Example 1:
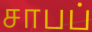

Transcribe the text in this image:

சாபப்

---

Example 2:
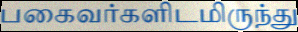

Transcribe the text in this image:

பகைவர்களிடமிருந்து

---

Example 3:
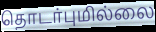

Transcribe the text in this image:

தொடர்புமில்லை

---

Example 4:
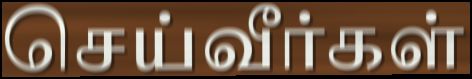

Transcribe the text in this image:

செய்வீர்கள்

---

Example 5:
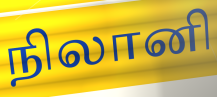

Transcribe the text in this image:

நிலானி